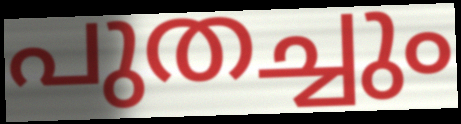
പുതച്ചും